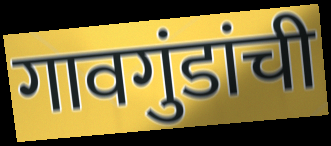
गावगुंडांची